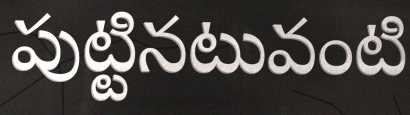
పుట్టినటువంటి